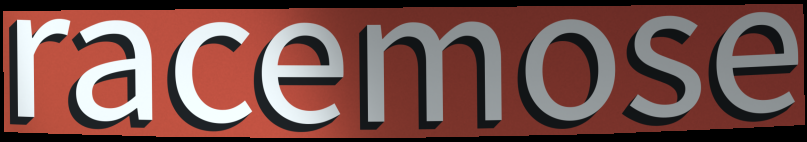
racemose